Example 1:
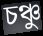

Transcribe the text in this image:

চঞ্চু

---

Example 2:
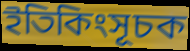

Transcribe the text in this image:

ইতিকিংসূচক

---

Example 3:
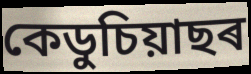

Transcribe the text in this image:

কেডুচিয়াছৰ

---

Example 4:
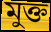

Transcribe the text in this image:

মুক্ত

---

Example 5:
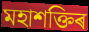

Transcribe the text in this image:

মহাশক্তিৰ